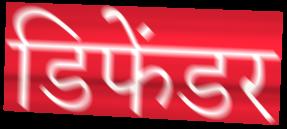
डिफेंडर